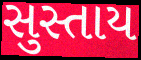
સુસ્તાય